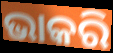
ଭାକରି